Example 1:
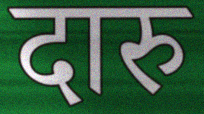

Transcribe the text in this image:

दारु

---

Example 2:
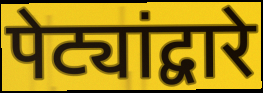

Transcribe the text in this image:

पेट्यांद्वारे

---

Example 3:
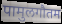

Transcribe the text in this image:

पामुलगौतम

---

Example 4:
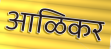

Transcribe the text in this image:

आळिकर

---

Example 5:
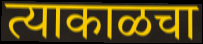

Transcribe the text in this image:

त्याकाळचा